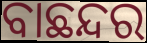
ବାଛନ୍ଦର